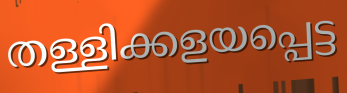
തള്ളിക്കളയപ്പെട്ട